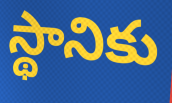
స్థానికు